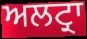
ਅਲਟ੍ਰਾ